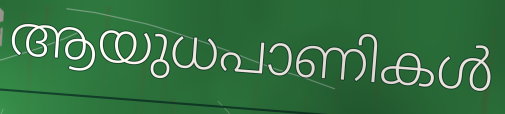
ആയുധപാണികൾ